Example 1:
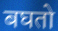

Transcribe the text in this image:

बघतो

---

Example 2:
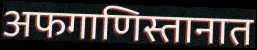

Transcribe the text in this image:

अफगाणिस्तानात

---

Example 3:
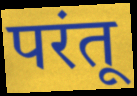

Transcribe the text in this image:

परंतू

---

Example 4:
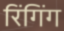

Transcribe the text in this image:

रिंगिंग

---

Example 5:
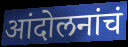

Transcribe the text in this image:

आंदोलनांचं